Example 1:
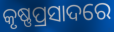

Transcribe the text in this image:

କୃଷ୍ଣପ୍ରସାଦରେ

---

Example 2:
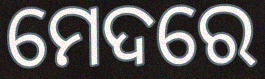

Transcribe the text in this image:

ମେଦରେ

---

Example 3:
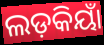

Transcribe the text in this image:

ଲଡ଼କିୟାଁ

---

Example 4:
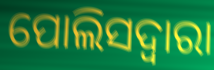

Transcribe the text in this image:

ପୋଲିସଦ୍ୱାରା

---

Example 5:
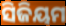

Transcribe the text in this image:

ସିଜିୟମ